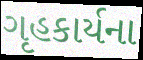
ગૃહકાર્યના